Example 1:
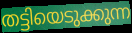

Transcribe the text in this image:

തട്ടിയെടുക്കുന്ന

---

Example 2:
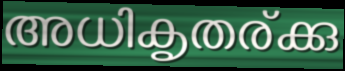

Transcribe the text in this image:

അധികൃതര്ക്കു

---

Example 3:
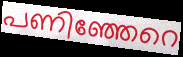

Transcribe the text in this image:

പണിഞ്ഞേറെ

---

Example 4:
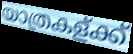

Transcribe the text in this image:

യാത്രകള്ക്ക്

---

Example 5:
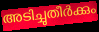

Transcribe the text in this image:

അടിച്ചുതീർക്കും